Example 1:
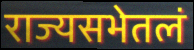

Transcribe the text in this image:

राज्यसभेतलं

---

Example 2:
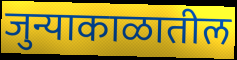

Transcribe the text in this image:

जुन्याकाळातील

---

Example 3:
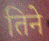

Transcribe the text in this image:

तिने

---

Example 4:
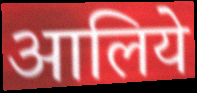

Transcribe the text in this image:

आलिये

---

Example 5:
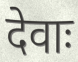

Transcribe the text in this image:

देवाः